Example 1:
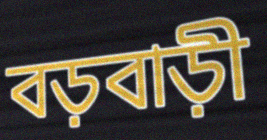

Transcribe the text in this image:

বড়বাড়ী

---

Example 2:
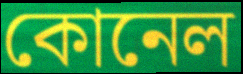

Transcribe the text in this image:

কোনেল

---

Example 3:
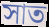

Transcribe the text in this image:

সাত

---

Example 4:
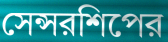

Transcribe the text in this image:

সেন্সরশিপের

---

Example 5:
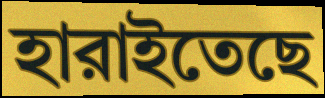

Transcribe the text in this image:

হারাইতেছে